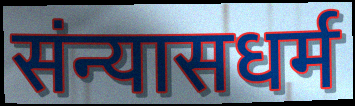
संन्यासधर्म